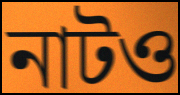
নাটও